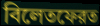
বিলেতফেরত